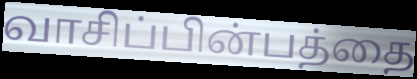
வாசிப்பின்பத்தை